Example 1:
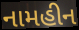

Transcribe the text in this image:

નામહીન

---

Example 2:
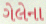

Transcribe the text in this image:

ગેલેના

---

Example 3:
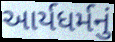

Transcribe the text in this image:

આર્યધર્મનું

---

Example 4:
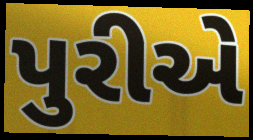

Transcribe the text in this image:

પુરીએ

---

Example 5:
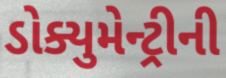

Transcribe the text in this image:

ડોક્યુમેન્ટ્રીની